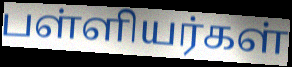
பள்ளியர்கள்